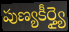
పుణ్యకీర్త్యై